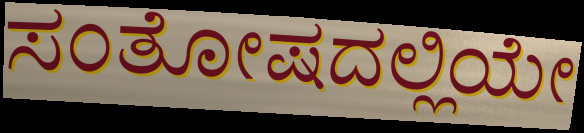
ಸಂತೋಷದಲ್ಲಿಯೇ